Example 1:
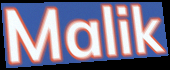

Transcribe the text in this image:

Malik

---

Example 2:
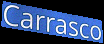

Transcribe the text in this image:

Carrasco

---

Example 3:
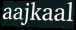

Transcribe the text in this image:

aajkaal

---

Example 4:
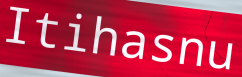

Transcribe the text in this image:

Itihasnu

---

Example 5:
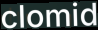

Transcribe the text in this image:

clomid